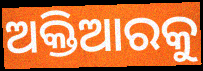
ଅକ୍ତିଆରକୁ